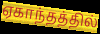
ஏகாந்தத்தில்